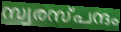
സ്വരസ്പന്ദം